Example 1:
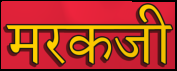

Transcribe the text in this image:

मरकजी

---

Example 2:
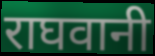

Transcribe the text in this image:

राघवानी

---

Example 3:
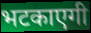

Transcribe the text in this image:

भटकाएगी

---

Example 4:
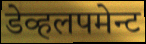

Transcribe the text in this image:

डेव्हलपमेन्ट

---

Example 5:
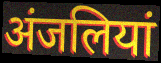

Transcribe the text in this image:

अंजलियां